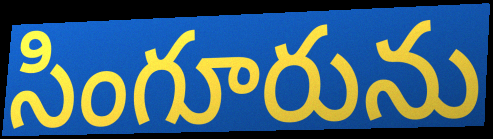
సింగూరును